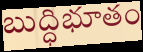
బుద్ధిభూతం